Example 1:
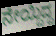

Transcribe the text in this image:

ನೇಯ್ದಿದ್ದ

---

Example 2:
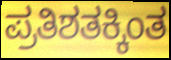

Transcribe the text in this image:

ಪ್ರತಿಶತಕ್ಕಿಂತ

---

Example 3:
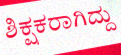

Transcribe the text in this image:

ಶಿಕ್ಷಕರಾಗಿದ್ದು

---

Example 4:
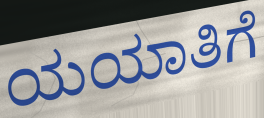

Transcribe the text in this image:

ಯಯಾತಿಗೆ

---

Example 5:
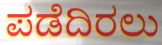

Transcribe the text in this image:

ಪಡೆದಿರಲು